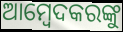
ଆମ୍ବେଦକରଙ୍କୁ